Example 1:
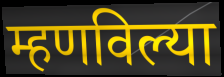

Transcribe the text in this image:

म्हणविल्या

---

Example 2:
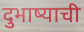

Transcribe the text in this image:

दुभाष्याची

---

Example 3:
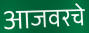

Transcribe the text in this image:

आजवरचे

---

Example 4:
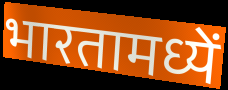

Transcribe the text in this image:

भारतामध्यें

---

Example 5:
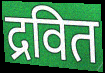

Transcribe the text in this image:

द्रवित